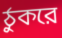
ঠুকরে